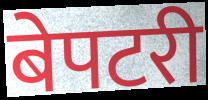
बेपटरी